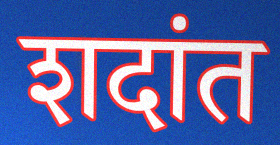
शदांत